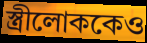
স্ত্রীলোককেও